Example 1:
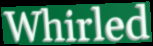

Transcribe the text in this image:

Whirled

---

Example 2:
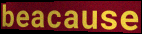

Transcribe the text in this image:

beacause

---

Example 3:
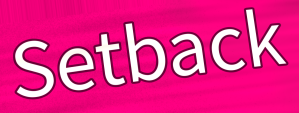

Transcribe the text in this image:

Setback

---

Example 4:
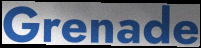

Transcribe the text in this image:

Grenade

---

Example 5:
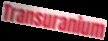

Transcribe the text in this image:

Transuranium